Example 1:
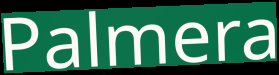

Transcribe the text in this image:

Palmera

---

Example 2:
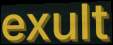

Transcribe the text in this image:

exult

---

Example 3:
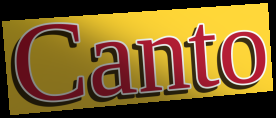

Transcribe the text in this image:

Canto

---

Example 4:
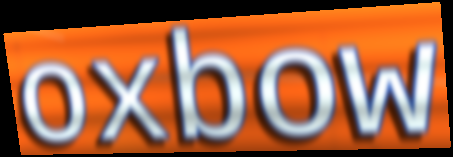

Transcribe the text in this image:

oxbow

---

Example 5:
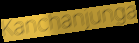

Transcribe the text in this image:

Kanchanjunga